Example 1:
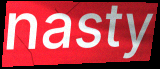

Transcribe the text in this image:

nasty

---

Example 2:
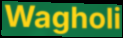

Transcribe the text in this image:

Wagholi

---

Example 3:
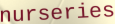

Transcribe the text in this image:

nurseries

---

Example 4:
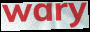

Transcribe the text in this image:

wary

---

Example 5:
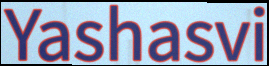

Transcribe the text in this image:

Yashasvi